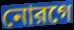
নোরগে